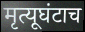
मृत्यूघंटाच